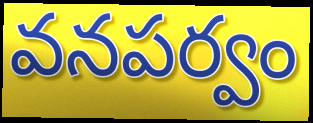
వనపర్వం